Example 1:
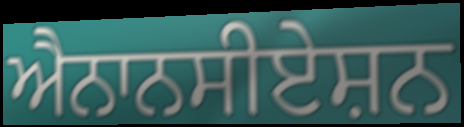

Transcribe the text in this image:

ਐਨਾਨਸੀਏਸ਼ਨ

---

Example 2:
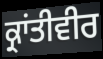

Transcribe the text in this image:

ਕ੍ਰਾਂਤੀਵੀਰ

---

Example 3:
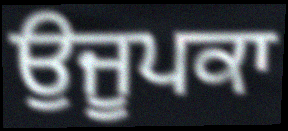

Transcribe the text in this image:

ਉਜੂਪਕਾ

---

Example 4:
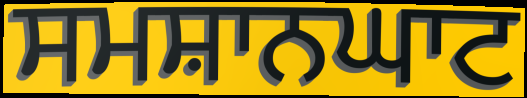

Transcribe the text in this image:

ਸਮਸ਼ਾਨਘਾਟ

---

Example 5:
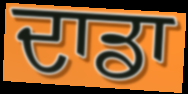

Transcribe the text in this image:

ਦਾਡਾ